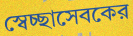
স্বেচ্ছাসেবকের